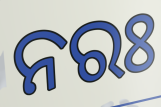
ନରଃ